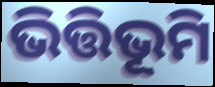
ଭିତ୍ତିଭୂମି